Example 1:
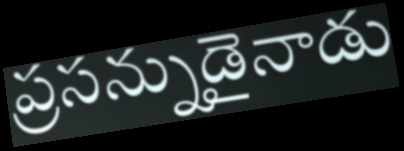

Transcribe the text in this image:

ప్రసన్నుడైనాడు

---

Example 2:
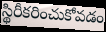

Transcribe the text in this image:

స్థిరీకరించుకోవడం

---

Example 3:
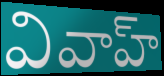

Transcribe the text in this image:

వివాహ్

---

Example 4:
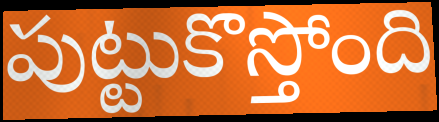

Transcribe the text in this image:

పుట్టుకొస్తోంది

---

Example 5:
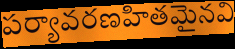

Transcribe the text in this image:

పర్యావరణహితమైనవి